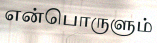
என்பொருளும்